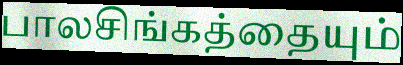
பாலசிங்கத்தையும்